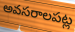
అవసరాలపట్ల